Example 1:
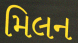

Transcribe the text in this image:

મિલન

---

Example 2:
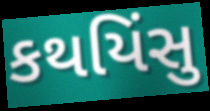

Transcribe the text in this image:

કથયિંસુ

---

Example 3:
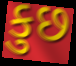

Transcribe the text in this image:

કુછ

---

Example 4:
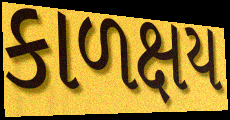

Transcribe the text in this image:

કાળક્ષય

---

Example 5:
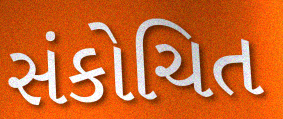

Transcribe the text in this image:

સંકોચિત